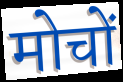
मोचों